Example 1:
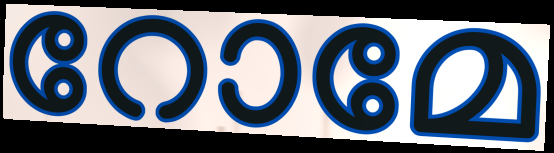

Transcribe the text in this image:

റോമേ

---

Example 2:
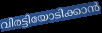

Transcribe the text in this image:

വിരട്ടിയോടിക്കാൻ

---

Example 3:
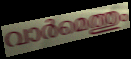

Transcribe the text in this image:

വാർമെത്തും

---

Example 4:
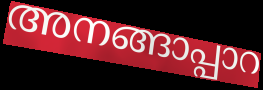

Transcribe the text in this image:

അനങ്ങാപ്പാറ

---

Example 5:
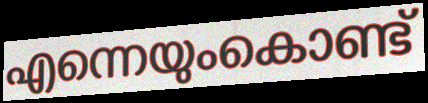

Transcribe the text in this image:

എന്നെയുംകൊണ്ട്